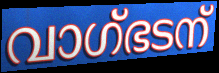
വാഗ്ഭടന്